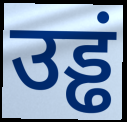
उड्ढं